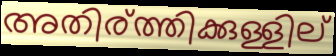
അതിര്ത്തിക്കുള്ളില്